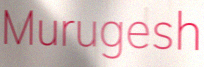
Murugesh